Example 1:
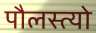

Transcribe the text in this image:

पौलस्त्यो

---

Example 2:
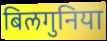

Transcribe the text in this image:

बिलगुनिया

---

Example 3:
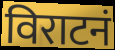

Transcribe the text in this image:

विराटनं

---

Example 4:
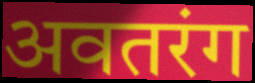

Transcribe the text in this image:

अवतरंग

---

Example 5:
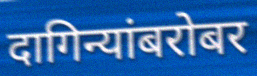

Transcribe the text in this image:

दागिन्यांबरोबर